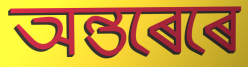
অন্তৰেৰে